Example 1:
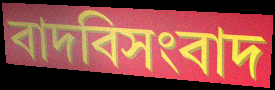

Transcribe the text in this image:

বাদবিসংবাদ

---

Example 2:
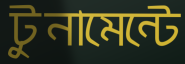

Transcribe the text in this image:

টুনামেন্টে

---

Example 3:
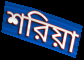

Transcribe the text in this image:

শরিয়া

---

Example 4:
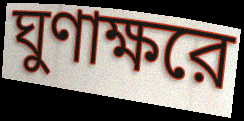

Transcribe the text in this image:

ঘুণাক্ষরে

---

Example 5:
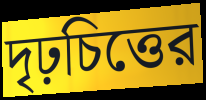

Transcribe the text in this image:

দৃঢ়চিত্তের